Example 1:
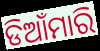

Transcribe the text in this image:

ଡିଆଁମାରି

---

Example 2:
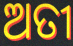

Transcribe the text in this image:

ଅତୀ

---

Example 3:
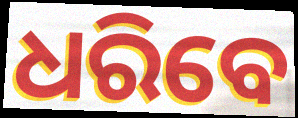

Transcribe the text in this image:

ଧରିବେ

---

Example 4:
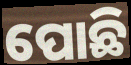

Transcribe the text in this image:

ପୋଛି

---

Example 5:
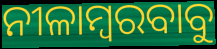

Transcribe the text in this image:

ନୀଳାମ୍ବରବାବୁ